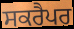
ਸਕਰੈਪਰ